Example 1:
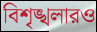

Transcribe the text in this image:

বিশৃঙ্খলারও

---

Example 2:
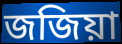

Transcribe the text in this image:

জজিয়া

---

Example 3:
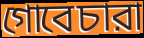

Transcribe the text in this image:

গোবেচারা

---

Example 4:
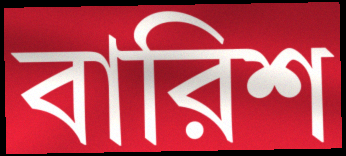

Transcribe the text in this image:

বারিশ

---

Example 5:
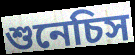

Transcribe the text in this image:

শুনেচিস